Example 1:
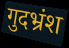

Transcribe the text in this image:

गुदभ्रंश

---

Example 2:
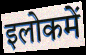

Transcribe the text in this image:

इलोकमें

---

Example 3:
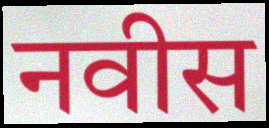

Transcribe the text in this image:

नवीस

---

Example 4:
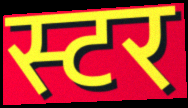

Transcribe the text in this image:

स्टर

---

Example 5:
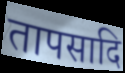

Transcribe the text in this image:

तापसादि